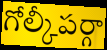
గోల్కీపర్గా